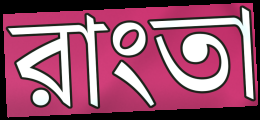
রাংতা